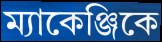
ম্যাকেঞ্জিকে